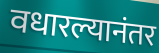
वधारल्यानंतर